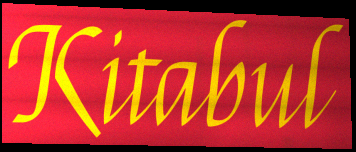
Kitabul